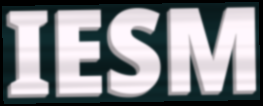
IESM